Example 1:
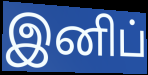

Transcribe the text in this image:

இனிப்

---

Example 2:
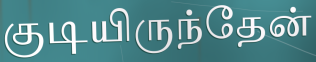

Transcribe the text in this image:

குடியிருந்தேன்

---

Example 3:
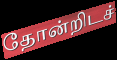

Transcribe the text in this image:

தோன்றிடச்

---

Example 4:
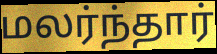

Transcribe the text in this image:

மலர்ந்தார்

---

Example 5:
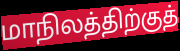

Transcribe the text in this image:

மாநிலத்திற்குத்